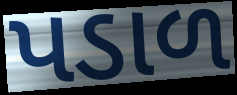
પડાળ